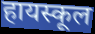
हायस्कूल